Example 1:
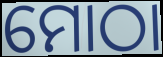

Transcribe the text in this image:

ମୋଠା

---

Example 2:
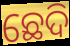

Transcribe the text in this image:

ଛେଦି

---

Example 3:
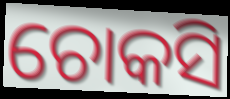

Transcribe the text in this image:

ଚୋକସି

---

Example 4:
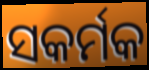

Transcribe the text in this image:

ସକର୍ମକ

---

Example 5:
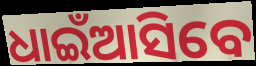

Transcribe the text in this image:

ଧାଇଁଆସିବେ